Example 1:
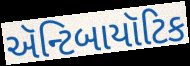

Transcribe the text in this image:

ઍન્ટિબાયૉટિક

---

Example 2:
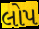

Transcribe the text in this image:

લોપ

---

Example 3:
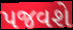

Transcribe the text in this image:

પજવશે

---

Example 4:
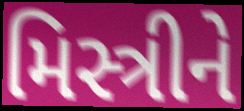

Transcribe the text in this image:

મિસ્ત્રીને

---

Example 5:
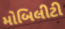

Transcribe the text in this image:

મોબિલીટી